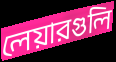
লেয়ারগুলি